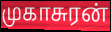
முகாசுரன்